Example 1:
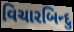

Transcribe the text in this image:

વિચારબિન્દુ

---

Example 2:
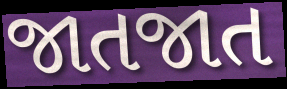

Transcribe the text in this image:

જાતજાત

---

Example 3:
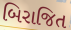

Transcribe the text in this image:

બિરાજિત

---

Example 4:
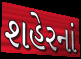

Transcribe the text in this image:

શહેરનાં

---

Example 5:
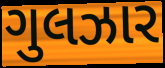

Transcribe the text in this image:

ગુલઝાર